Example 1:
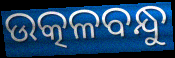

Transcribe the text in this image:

ଉତ୍କଳବନ୍ଧୁ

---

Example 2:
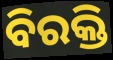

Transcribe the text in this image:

ବିରକ୍ତି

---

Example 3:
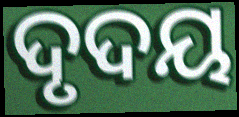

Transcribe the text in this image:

ଦୃଦୟ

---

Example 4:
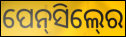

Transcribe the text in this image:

ପେନ୍‍ସିଲ୍‍ରେ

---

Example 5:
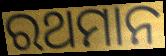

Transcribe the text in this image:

ରଥମାନ